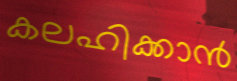
കലഹിക്കാൻ